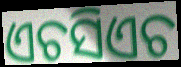
ଏଚସିଏଚ